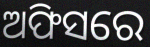
ଅଫିସରେ